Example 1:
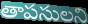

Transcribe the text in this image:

తాపసులని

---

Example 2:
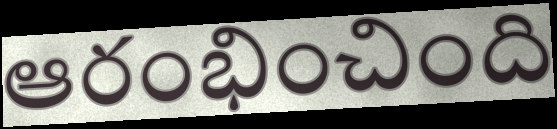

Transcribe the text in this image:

ఆరంభించింది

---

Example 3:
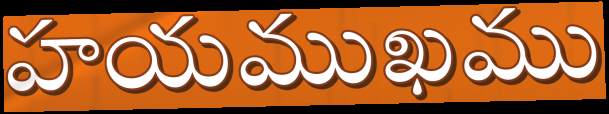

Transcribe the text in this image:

హయముఖము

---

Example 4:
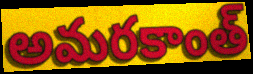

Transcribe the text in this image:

అమరకాంత్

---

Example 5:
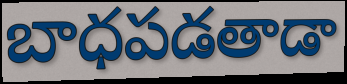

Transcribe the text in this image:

బాధపడతాడా